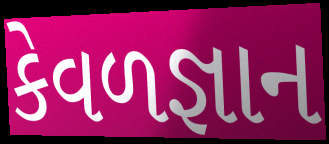
કેવળજ્ઞાન